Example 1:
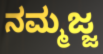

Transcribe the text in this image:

ನಮ್ಮಜ್ಜ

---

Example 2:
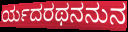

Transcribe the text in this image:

ರ್ಯದರಥನನುನ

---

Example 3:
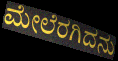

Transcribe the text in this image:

ಮೇಲೆರಗಿದನು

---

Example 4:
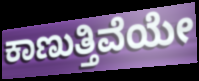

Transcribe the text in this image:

ಕಾಣುತ್ತಿವೆಯೇ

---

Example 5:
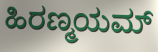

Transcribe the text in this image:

ಹಿರಣ್ಮಯಮ್